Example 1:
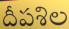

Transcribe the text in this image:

దీపశిల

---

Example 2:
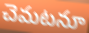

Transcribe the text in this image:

చెమటనూ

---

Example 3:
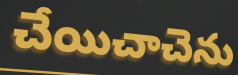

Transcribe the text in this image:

చేయిచాచెను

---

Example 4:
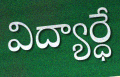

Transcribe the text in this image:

విద్యార్ధే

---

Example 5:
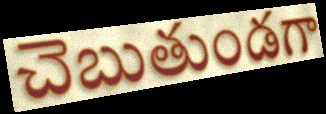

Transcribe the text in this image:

చెబుతుండగా